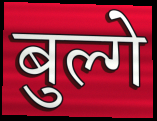
बुल्गे